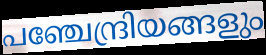
പഞ്ചേന്ദ്രിയങ്ങളും